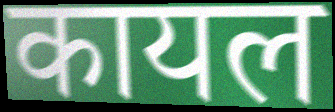
कायल